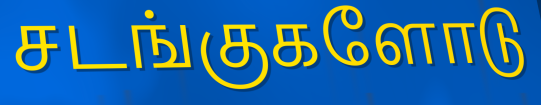
சடங்குகளோடு